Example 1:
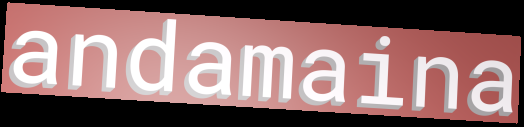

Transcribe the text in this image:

andamaina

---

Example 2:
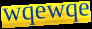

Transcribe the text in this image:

wqewqe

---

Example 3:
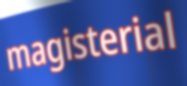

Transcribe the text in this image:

magisterial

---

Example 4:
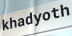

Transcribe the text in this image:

khadyoth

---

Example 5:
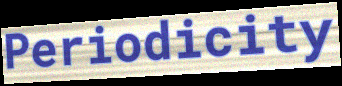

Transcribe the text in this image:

Periodicity